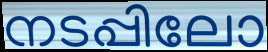
നടപ്പിലോ